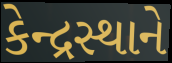
કેન્દ્રસ્થાને